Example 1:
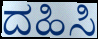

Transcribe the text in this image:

ದಹಿಸಿ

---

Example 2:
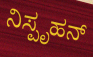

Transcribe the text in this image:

ನಿಸ್ಪೃಹನ್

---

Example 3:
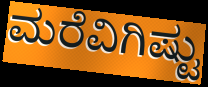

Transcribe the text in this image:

ಮರೆವಿಗಿಷ್ಟು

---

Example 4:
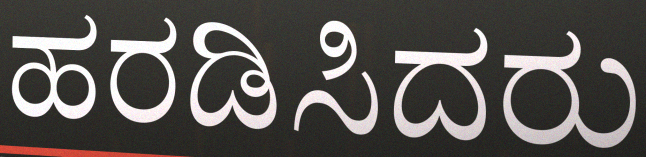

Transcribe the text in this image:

ಹರಡಿಸಿದರು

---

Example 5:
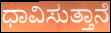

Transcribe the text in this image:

ಧಾವಿಸುತ್ತಾನೆ